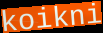
koikni